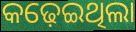
କଢ଼େଇଥିଲା